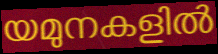
യമുനകളിൽ